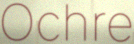
Ochre